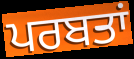
ਪਰਬਤਾਂ